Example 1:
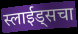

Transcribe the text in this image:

स्लाईड्सचा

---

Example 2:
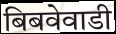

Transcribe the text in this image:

बिबवेवाडी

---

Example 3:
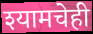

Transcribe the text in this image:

श्यामचेही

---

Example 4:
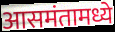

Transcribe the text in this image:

आसमंतामध्ये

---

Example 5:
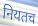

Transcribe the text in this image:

नियतच